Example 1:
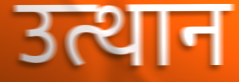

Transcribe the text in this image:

उत्थान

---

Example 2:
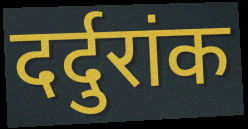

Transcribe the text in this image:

दर्दुरांक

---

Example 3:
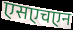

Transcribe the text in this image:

एसएचएन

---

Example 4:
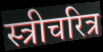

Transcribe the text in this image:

स्त्रीचरित्र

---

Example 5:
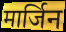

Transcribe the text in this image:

मार्जिन